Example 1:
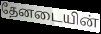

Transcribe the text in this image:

தேனடையின்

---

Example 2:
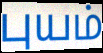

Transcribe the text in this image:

புயம்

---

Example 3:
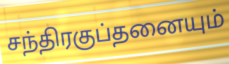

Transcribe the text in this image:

சந்திரகுப்தனையும்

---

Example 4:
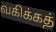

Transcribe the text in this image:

வகிக்கத்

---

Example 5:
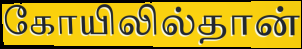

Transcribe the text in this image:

கோயிலில்தான்